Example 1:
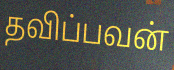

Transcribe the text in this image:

தவிப்பவன்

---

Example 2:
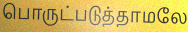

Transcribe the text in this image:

பொருட்படுத்தாமலே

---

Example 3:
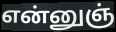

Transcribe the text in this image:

என்னுஞ்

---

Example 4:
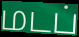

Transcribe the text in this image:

மடப்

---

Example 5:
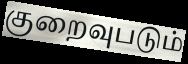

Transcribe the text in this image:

குறைவுபடும்